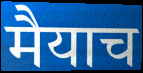
मैयाच